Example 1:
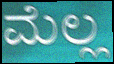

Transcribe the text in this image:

ಮೆಲ್ಲ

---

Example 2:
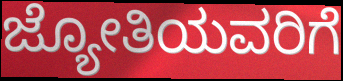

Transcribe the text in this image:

ಜ್ಯೋತಿಯವರಿಗೆ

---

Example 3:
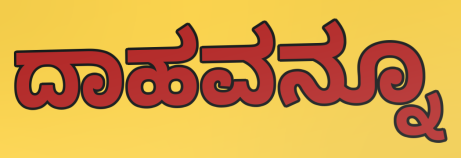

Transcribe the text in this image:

ದಾಹವನ್ನೂ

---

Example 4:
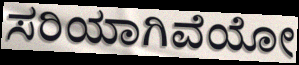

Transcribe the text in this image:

ಸರಿಯಾಗಿವೆಯೋ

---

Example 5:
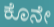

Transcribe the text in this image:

ಕೊನೇ